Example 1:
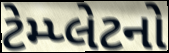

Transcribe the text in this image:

ટેમ્પ્લેટનો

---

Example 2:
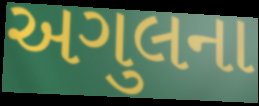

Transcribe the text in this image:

અગુલના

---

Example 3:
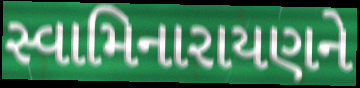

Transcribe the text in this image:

સ્વામિનારાયણને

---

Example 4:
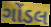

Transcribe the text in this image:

ગોંડલ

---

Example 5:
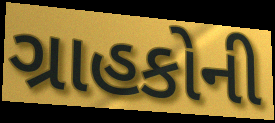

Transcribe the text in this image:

ગ્રાહકોની